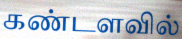
கண்டளவில்